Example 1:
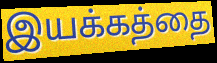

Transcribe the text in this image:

இயக்கத்தை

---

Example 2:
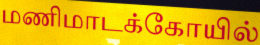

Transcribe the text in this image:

மணிமாடக்கோயில்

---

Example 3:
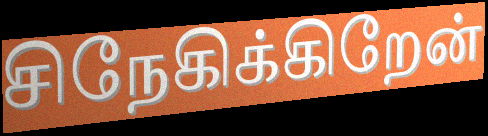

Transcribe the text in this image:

சிநேகிக்கிறேன்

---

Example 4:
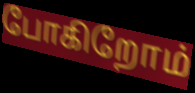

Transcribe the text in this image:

போகிறோம்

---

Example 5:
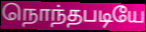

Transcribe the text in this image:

நொந்தபடியே